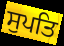
ਸੁਪਤਿ